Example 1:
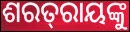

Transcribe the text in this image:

ଶରତ୍‌ରାୟଙ୍କୁ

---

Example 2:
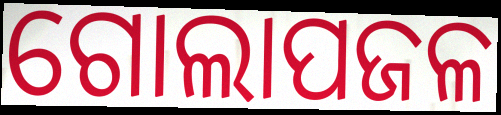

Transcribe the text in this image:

ଗୋଲାପଜଳ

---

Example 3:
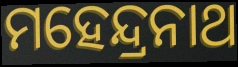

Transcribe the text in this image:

ମହେନ୍ଦ୍ରନାଥ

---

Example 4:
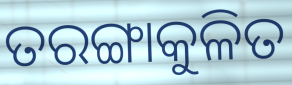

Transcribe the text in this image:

ତରଙ୍ଗାକୁଳିତ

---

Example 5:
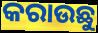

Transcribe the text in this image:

କରାଉଛୁ